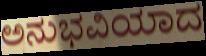
ಅನುಭವಿಯಾದ